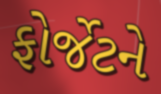
ફોર્જેટને